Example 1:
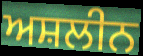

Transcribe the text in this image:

ਅਸ਼ਲੀਨ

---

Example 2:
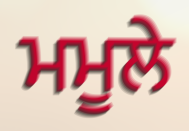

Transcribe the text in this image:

ਮਮੂਲੇ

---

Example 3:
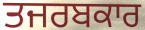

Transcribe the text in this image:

ਤਜਰਬਕਾਰ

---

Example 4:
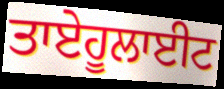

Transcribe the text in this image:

ਤਾਏਹੂਲਾਈਟ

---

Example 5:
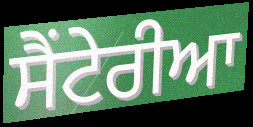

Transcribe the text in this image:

ਸੈਂਟੇਰੀਆ